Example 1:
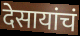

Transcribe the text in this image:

देसायांचं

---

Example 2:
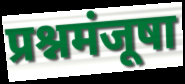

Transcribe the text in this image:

प्रश्नमंजूषा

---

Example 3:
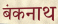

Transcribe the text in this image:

बंकनाथ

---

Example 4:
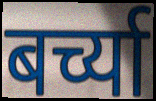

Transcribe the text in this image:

बर्च्या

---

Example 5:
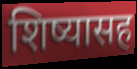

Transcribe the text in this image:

शिष्यासह